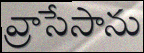
వ్రాసేసాను